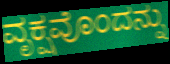
ವೃಕ್ಷವೊಂದನ್ನು